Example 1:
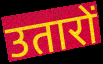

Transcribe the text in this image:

उतारों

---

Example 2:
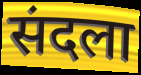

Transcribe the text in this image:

संदला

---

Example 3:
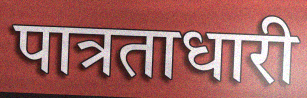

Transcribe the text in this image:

पात्रताधारी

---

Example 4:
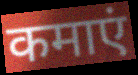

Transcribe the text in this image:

कमाएं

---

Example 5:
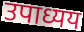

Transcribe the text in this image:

उपाध्यय